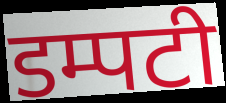
डम्पटी